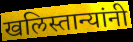
खलिस्तान्यांनी